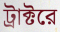
ট্রাক্টরে